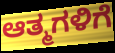
ಆತ್ಮಗಳಿಗೆ